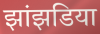
झांझडिया